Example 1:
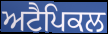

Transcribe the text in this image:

ਅਟੈਪਿਕਲ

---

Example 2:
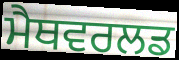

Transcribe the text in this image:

ਮੈਥਵਰਲਡ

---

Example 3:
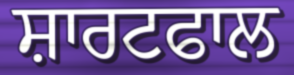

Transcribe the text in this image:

ਸ਼ਾਰਟਫਾਲ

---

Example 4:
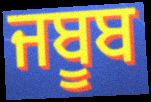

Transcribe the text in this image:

ਜਬੂਬ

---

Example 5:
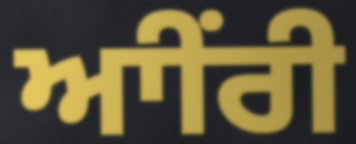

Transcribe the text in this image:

ਆੀਂਰੀ